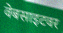
वेबसाइटवर